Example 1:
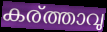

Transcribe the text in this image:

കര്ത്താവു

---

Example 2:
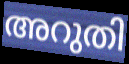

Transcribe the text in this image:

അറുതി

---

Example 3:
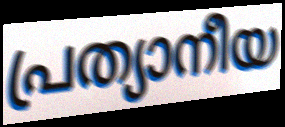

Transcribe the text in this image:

പ്രത്യാനീയ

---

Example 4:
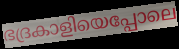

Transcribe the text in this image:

ഭദ്രകാളിയെപ്പോലെ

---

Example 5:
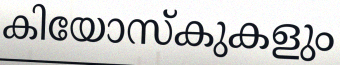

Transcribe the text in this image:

കിയോസ്കുകളും